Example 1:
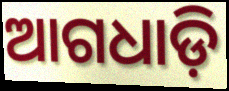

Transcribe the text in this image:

ଆଗଧାଡ଼ି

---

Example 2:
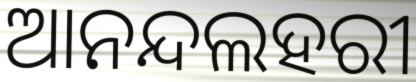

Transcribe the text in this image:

ଆନନ୍ଦଲହରୀ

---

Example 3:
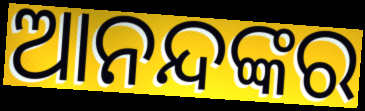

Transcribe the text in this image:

ଆନନ୍ଦଙ୍କର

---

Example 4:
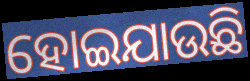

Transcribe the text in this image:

ହୋଇଯାଉଛି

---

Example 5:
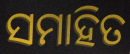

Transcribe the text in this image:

ସମାହିତ